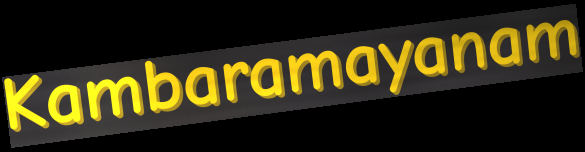
Kambaramayanam